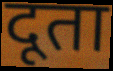
दूता